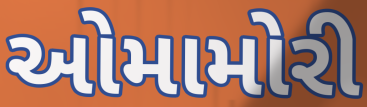
ઓમામોરી